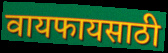
वायफायसाठी